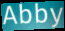
Abby